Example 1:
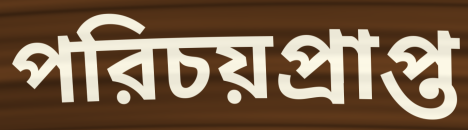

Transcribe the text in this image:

পরিচয়প্রাপ্ত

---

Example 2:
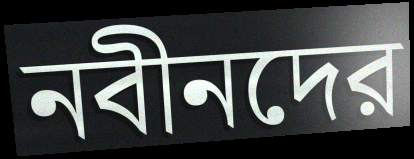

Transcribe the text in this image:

নবীনদের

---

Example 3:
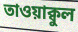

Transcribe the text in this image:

তাওয়াক্বুল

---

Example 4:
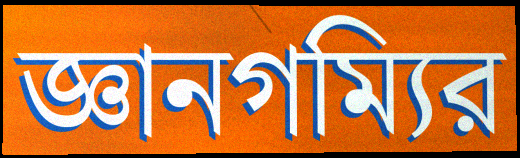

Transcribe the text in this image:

জ্ঞানগম্যির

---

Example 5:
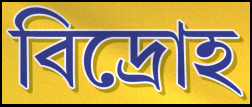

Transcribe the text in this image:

বিদ্রোহ